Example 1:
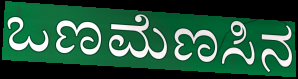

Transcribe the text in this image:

ಒಣಮೆಣಸಿನ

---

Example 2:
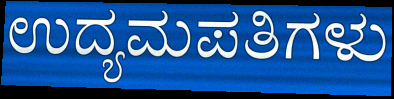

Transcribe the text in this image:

ಉದ್ಯಮಪತಿಗಳು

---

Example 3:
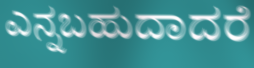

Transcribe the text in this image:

ಎನ್ನಬಹುದಾದರೆ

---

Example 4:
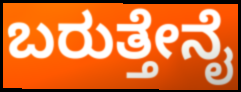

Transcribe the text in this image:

ಬರುತ್ತೇನೈ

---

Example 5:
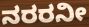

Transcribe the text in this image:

ನರರನೀ